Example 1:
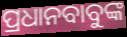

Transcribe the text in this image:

ପ୍ରଧାନବାବୁଙ୍କ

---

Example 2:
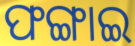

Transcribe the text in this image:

ଫଙ୍ଗାଇ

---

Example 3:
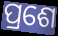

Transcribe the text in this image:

ପ୍ରଶେ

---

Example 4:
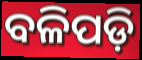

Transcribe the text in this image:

ବଳିପଡ଼ି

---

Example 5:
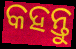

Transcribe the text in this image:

କହନ୍ତୁ